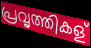
പ്രവൃത്തികള്